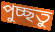
পুচ্ছতু